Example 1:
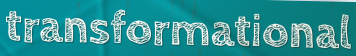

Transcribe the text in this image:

transformational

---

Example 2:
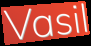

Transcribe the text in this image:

Vasil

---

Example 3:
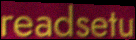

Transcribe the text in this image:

readsetu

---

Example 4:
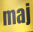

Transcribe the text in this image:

maj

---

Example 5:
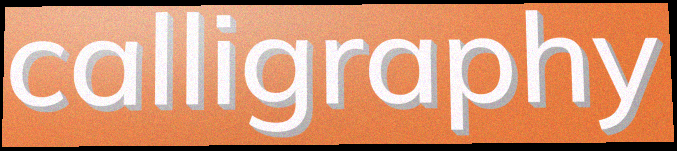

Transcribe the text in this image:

calligraphy